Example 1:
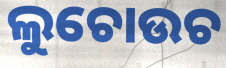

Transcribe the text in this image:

ଲୁଚୋଉଚ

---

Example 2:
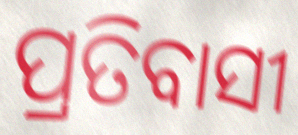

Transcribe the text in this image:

ପ୍ରତିବାସୀ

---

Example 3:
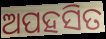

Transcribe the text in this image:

ଅପହସିତ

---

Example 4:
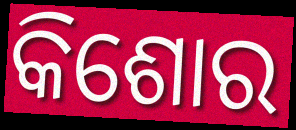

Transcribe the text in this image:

କିଶୋର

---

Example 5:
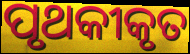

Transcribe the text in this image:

ପୃଥକୀକୃତ